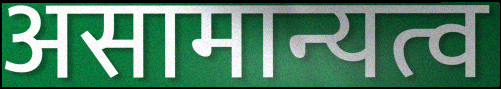
असामान्यत्व